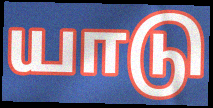
யாடு